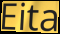
Eita